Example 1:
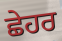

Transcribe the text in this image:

ਛੇਹਰ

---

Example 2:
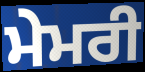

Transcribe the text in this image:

ਮੇਮਰੀ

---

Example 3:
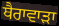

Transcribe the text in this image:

ਥੈਰਾਵਾੜਾ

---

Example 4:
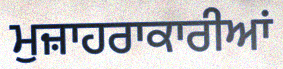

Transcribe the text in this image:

ਮੁਜ਼ਾਹਰਾਕਾਰੀਆਂ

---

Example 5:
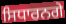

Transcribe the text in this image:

ਸਿਧਾਰਨਗੇ